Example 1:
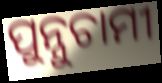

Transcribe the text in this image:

ପୁନ୍ନୁଚାମୀ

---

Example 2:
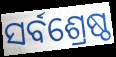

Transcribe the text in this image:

ସର୍ବଶ୍ରେଷ୍ଠ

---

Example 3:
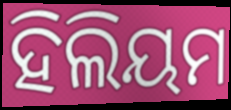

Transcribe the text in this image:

ହିଲିୟମ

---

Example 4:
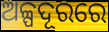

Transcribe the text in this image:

ଅଳ୍ପଦୂରରେ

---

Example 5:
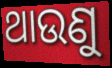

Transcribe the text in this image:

ଥାଉଣୁ